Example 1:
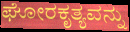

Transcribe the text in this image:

ಘೋರಕೃತ್ಯವನ್ನು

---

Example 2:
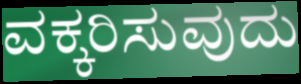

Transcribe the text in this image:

ವಕ್ಕರಿಸುವುದು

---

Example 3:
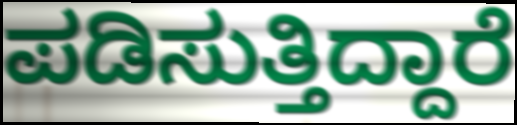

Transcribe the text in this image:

ಪಡಿಸುತ್ತಿದ್ದಾರೆ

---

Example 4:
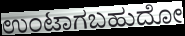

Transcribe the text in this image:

ಉಂಟಾಗಬಹುದೋ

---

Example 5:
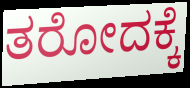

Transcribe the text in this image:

ತರೋದಕ್ಕೆ